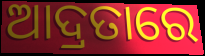
ଆଦ୍ରତାରେ